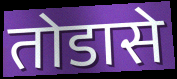
तोडासे